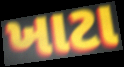
ખાટા